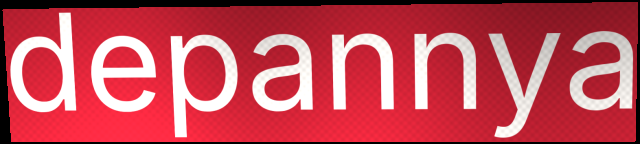
depannya